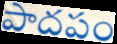
పాదపం